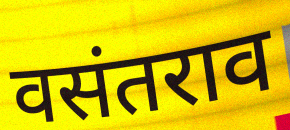
वसंतराव